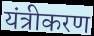
यंत्रीकरण